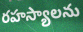
రహస్యాలను